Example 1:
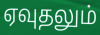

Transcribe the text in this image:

ஏவுதலும்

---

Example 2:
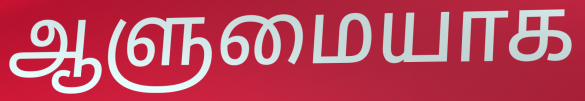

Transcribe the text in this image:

ஆளுமையாக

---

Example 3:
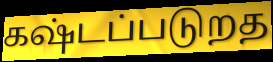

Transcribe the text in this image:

கஷ்டப்படுறத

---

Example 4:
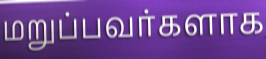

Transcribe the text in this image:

மறுப்பவர்களாக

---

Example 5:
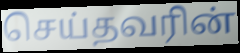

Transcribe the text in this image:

செய்தவரின்